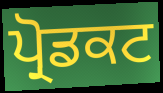
ਪ੍ਰੋਡਕਟ